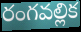
రంగవల్లిక